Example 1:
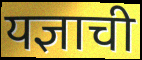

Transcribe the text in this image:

यज्ञाची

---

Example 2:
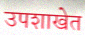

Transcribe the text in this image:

उपशाखेत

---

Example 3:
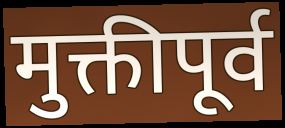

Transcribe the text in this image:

मुक्तीपूर्व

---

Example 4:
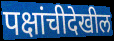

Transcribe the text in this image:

पक्षांचीदेखील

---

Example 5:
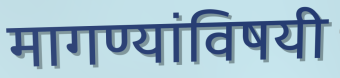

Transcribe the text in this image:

मागण्यांविषयी